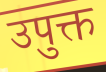
उपुक्त